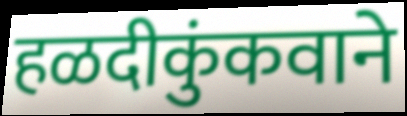
हळदीकुंकवाने